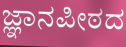
ಜ್ಞಾನಪೀಠದ